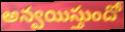
అన్వయిస్తుందో